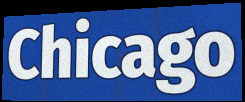
Chicago